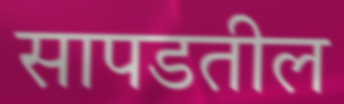
सापडतील